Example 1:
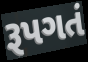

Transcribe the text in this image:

રૂપગતં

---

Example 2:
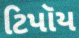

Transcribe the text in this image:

ટિપૉય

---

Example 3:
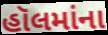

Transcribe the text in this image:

હૉલમાંના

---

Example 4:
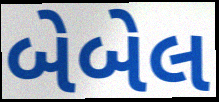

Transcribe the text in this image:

બેબેલ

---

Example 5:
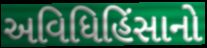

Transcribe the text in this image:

અવિધિહિંસાનો